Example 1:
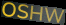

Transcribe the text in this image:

OSHW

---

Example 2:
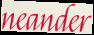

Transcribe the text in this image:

neander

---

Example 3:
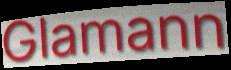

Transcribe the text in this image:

Glamann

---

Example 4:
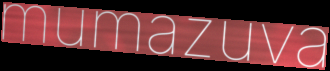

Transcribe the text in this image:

mumazuva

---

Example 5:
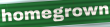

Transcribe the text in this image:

homegrown